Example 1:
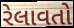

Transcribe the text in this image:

રેલાવતો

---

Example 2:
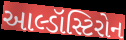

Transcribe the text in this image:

આલ્ડૉસ્ટિરોન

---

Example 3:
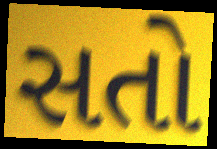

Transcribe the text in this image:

સતો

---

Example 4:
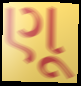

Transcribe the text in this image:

ણૂ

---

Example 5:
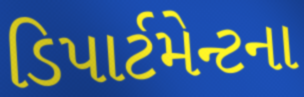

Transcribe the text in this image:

ડિપાર્ટમેન્ટના